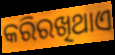
କରିରଖିଥାଏ